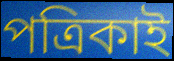
পত্রিকাই